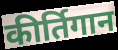
कीर्तिगान